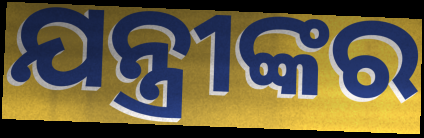
ଯନ୍ତ୍ରୀଙ୍କର